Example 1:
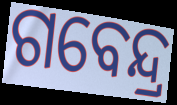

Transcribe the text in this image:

ଗବେନ୍ଦ୍ର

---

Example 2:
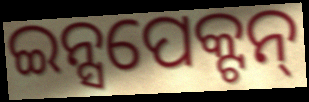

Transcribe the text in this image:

ଇନ୍ସପେକ୍ଟନ୍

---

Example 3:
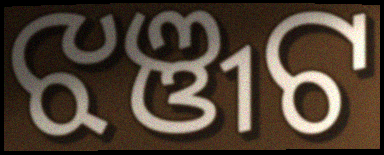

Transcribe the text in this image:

ଝଞ୍ଜଟ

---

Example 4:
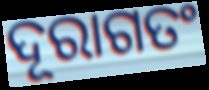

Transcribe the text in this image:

ଦୂରାଗତଂ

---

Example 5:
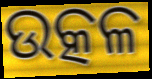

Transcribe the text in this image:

ଉତ୍କଳ